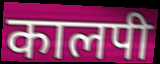
कालपी